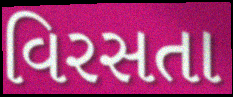
વિરસતા